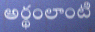
అర్థంలాంటి